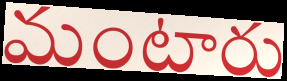
మంటారు